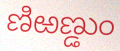
ణిఱణ్డుం